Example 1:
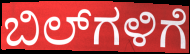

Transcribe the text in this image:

ಬಿಲ್‌ಗಳಿಗೆ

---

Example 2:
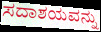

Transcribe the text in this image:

ಸದಾಶಯವನ್ನು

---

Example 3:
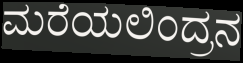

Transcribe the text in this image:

ಮರೆಯಲಿಂದ್ರನ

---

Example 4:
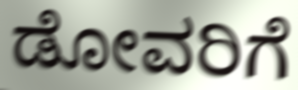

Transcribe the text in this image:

ಡೋವರಿಗೆ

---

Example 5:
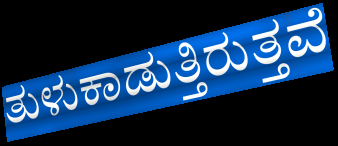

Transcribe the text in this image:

ತುಳುಕಾಡುತ್ತಿರುತ್ತವೆ